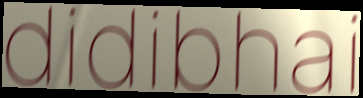
didibhai